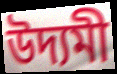
উদ্যমী